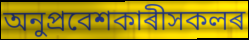
অনুপ্ৰবেশকাৰীসকলৰ